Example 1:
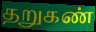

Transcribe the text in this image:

தறுகண்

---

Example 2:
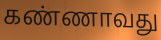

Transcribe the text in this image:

கண்ணாவது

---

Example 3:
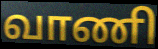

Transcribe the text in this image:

வாணி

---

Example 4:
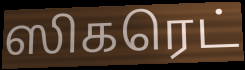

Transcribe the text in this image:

ஸிகரெட்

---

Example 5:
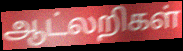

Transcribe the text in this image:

ஆட்லறிகள்